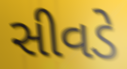
સીવડે